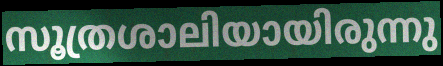
സൂത്രശാലിയായിരുന്നു